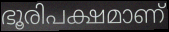
ഭൂരിപക്ഷമാണ്